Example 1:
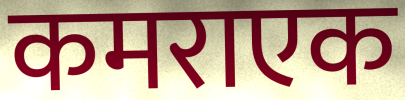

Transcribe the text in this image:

कमराएक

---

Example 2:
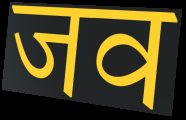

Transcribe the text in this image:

जव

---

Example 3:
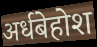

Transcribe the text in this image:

अर्धबेहोश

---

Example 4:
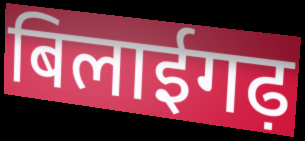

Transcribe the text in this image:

बिलाईगढ़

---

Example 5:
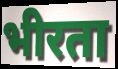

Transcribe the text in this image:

भीरता